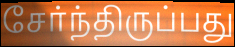
சேர்ந்திருப்பது